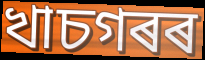
খাচগৰৰ